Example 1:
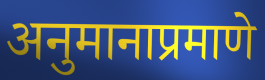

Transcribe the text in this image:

अनुमानाप्रमाणे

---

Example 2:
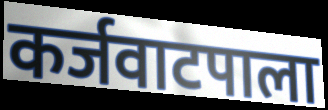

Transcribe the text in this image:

कर्जवाटपाला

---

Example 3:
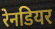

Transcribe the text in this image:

रेनडियर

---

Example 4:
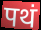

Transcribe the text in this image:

पथं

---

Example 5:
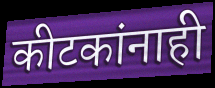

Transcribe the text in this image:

कीटकांनाही